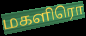
மகளிரொ